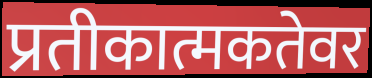
प्रतीकात्मकतेवर